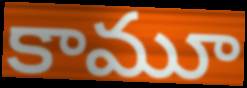
కామూ